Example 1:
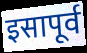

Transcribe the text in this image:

इसापूर्व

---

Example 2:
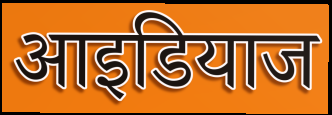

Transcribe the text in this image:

आइडियाज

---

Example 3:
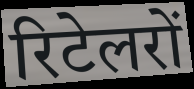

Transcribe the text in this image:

रिटेलरों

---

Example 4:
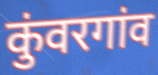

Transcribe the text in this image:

कुंवरगांव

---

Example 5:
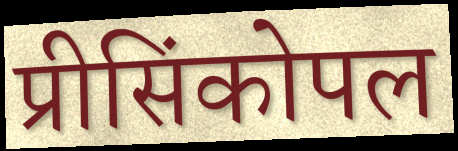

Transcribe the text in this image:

प्रीसिंकोपल